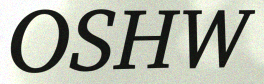
OSHW